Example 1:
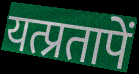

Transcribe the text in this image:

यत्प्रतापें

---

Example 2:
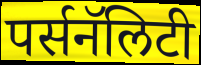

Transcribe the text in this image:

पर्सनॅलिटी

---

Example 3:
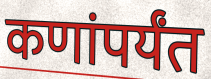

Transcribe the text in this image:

कणांपर्यंत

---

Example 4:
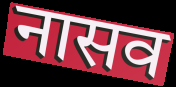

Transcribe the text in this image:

नासव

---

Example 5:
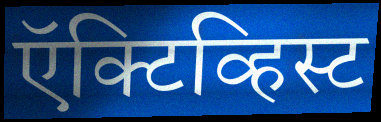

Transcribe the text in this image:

ऍक्टिव्हिस्ट